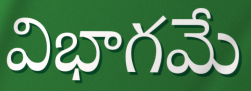
విభాగమే